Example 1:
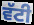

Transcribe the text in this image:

ਵੱਟੀ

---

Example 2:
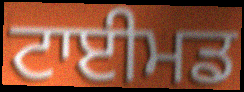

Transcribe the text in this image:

ਟਾਈਮਡ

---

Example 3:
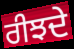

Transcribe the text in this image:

ਰੀਝਦੇ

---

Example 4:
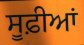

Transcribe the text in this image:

ਸੂਫ਼ੀਆਂ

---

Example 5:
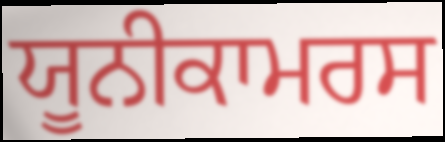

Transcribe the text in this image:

ਯੂਨੀਕਾਮਰਸ